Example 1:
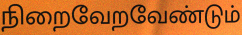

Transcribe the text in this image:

நிறைவேறவேண்டும்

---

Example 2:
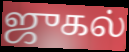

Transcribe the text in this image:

ஜுகல்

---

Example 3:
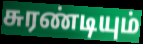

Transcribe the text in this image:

சுரண்டியும்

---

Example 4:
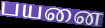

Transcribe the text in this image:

பயனை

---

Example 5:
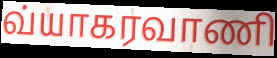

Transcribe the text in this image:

வ்யாகரவாணி